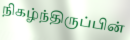
நிகழ்ந்திருப்பின்